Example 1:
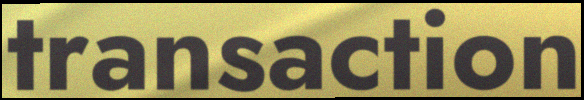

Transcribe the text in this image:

transaction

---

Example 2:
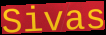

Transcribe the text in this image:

Sivas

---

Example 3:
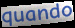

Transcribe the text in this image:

quando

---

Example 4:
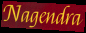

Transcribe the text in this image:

Nagendra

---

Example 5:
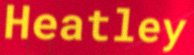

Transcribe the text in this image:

Heatley